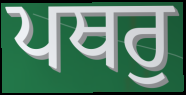
ਪਥਰੁ